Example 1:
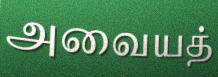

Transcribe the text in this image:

அவையத்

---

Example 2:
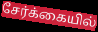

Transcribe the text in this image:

சேர்க்கையில்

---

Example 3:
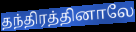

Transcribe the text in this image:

தந்திரத்தினாலே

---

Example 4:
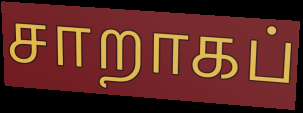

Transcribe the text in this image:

சாறாகப்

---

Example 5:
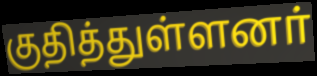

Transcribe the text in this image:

குதித்துள்ளனர்